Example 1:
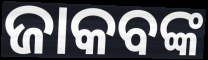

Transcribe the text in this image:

ଜାକବଙ୍କ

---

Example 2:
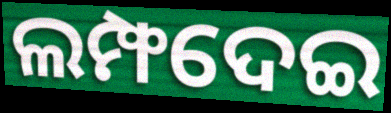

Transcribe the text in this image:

ଲମ୍ଫଦେଇ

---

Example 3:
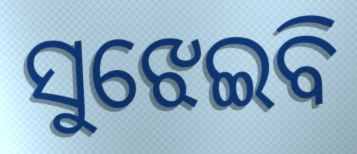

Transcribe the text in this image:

ସୁଝେଇବି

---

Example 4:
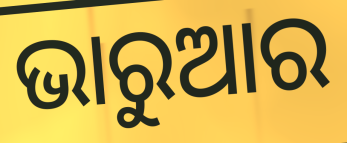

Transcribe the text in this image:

ଭାରୁଆର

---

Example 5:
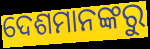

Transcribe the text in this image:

ଦେଶମାନଙ୍କରୁ